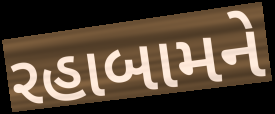
રહાબામને